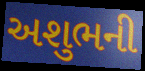
અશુભની